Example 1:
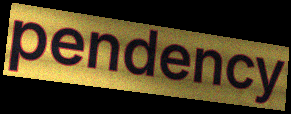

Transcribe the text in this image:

pendency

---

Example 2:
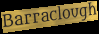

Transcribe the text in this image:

Barraclough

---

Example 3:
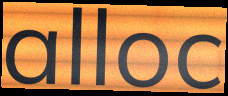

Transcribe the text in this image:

alloc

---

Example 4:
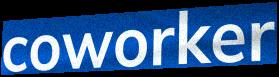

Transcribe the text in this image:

coworker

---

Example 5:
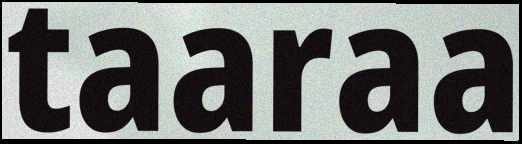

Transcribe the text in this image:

taaraa